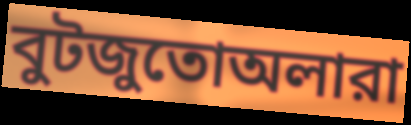
বুটজুতোঅলারা